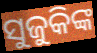
ସୁଜୁକିଙ୍କ